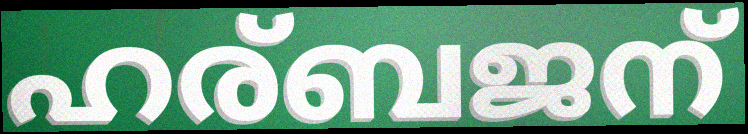
ഹര്ബജന്